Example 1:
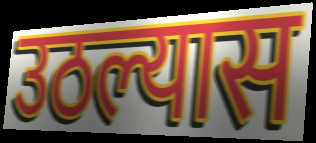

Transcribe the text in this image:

उठल्यास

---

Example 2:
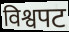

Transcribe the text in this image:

विश्वपट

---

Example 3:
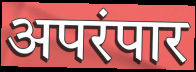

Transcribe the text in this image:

अपरंपार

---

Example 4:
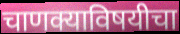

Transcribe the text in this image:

चाणक्याविषयीचा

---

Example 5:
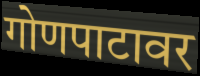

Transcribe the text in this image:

गोणपाटावर